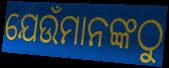
ଯେଉଁମାନଙ୍କଠୁ